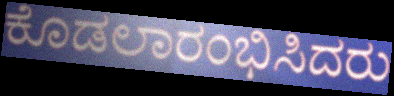
ಕೊಡಲಾರಂಭಿಸಿದರು